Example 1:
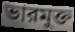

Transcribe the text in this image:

ভারমুক্ত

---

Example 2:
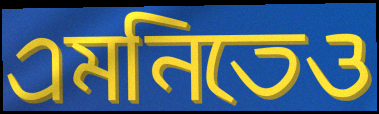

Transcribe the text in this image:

এমনিতেও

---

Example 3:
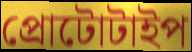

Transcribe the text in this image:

প্রোটোটাইপ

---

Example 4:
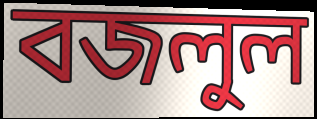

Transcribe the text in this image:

বজলুল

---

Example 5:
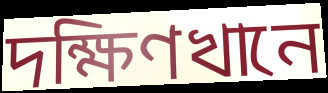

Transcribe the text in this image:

দক্ষিণখানে